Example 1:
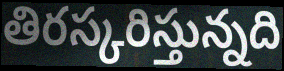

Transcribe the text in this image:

తిరస్కరిస్తున్నది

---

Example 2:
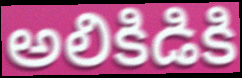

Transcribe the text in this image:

అలికిడికి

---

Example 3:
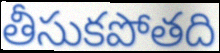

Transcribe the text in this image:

తీసుకపోతది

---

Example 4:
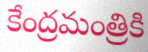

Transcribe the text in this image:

కేంద్రమంత్రికి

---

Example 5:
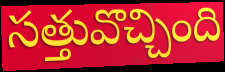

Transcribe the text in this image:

సత్తువొచ్చింది